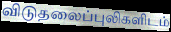
விடுதலைப்புலிகளிடம்